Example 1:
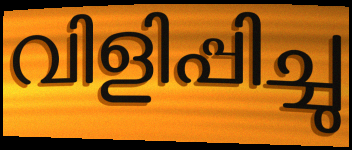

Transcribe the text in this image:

വിളിപ്പിച്ചു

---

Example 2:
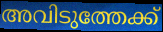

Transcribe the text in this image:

അവിടുത്തേക്ക്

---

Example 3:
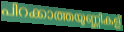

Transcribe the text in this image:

പിറക്കാത്തയുണ്ണികള്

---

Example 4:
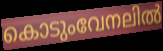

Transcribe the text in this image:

കൊടുംവേനലിൽ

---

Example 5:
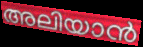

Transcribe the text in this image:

അലിയാൻ